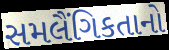
સમલૈંગિકતાનો